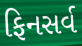
ફિનસર્વ